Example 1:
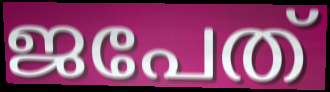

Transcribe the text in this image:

ജപേത്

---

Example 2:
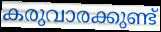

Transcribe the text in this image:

കരുവാരക്കുണ്ട്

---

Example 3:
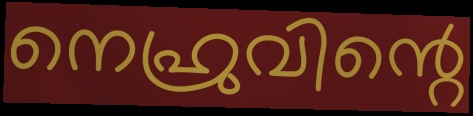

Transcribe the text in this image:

നെഹ്രുവിന്റെ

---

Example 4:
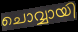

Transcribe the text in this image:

ചൊവ്വായി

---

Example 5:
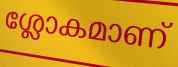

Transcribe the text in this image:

ശ്ലോകമാണ്